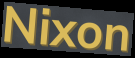
Nixon